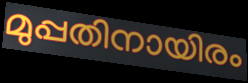
മുപ്പതിനായിരം